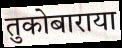
तुकोबाराया